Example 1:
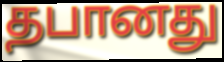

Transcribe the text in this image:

தபானது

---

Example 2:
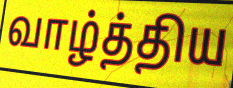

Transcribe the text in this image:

வாழ்த்திய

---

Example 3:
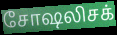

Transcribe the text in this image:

சோஷலிசக்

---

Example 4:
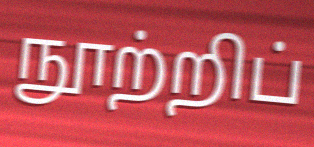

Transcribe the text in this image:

நூற்றிப்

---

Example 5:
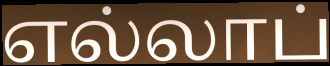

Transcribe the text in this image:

எல்லாப்